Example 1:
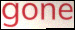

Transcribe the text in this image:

gone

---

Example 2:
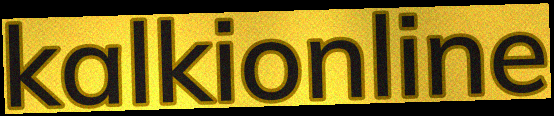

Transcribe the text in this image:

kalkionline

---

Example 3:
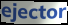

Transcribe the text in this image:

ejector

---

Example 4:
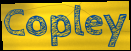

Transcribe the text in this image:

Copley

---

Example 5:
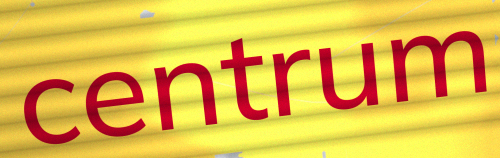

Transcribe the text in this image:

centrum